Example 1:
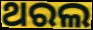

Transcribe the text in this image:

ଥରଲ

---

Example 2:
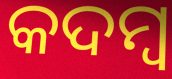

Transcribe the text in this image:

କଦମ୍ୱ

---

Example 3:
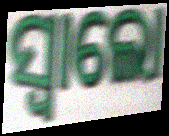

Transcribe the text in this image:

ସ୍ବାଲୋ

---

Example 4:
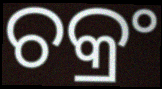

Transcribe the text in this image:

ଚକ୍ରଂ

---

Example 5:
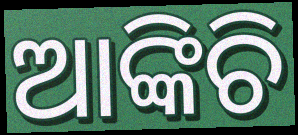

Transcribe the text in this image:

ଆଙ୍କିଚି